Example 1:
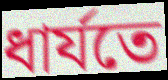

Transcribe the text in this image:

ধার্যতে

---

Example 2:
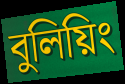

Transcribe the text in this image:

বুলিয়িং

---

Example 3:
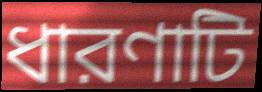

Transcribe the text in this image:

ধারণাটি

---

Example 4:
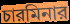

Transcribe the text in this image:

চারমিনার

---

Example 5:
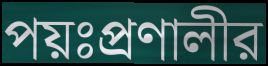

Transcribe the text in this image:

পয়ঃপ্রণালীর